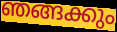
ഞങ്ങക്കും